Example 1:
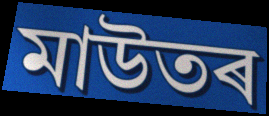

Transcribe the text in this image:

মাউতৰ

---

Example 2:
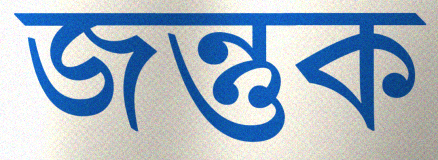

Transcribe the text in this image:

জন্তুক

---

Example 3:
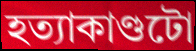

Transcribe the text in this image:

হত্যাকাণ্ডটো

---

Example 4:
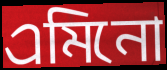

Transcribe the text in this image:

এমিনো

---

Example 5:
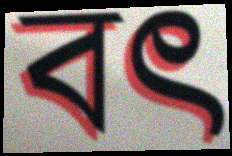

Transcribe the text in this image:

বৎ